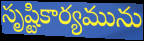
సృష్టికార్యమును